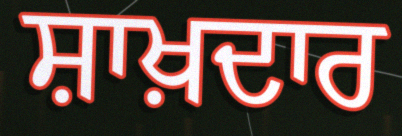
ਸ਼ਾਖ਼ਦਾਰ